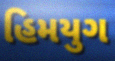
હિમયુગ